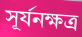
সূর্যনক্ষত্র